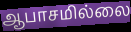
ஆபாசமில்லை